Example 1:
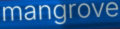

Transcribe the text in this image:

mangrove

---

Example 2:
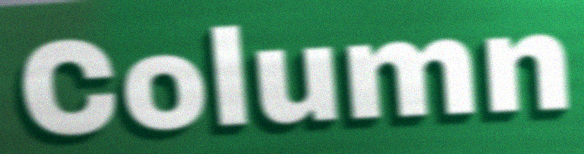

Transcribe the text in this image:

Column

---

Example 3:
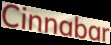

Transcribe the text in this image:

Cinnabar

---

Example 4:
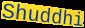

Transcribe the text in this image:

Shuddhi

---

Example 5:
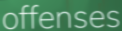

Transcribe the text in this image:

offenses